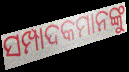
ସମ୍ପାଦକମାନଙ୍କୁ